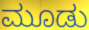
ಮೂಡು